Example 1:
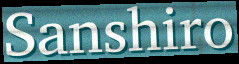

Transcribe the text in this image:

Sanshiro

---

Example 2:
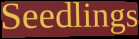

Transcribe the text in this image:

Seedlings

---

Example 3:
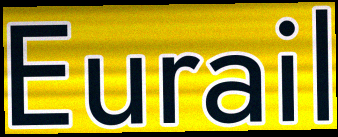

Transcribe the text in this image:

Eurail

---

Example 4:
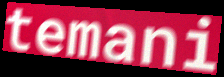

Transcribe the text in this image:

temani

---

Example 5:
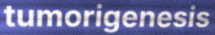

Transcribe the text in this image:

tumorigenesis